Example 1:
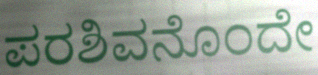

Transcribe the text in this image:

ಪರಶಿವನೊಂದೇ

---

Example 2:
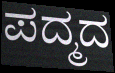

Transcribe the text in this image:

ಪದ್ಮದ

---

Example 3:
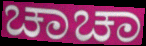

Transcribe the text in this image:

ಚಾಚಾ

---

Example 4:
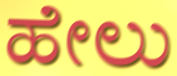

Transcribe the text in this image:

ಹೇಲು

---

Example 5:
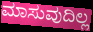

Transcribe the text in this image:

ಮಾಸುವುದಿಲ್ಲ